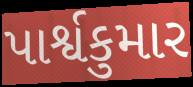
પાર્શ્વકુમાર